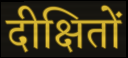
दीक्षितों